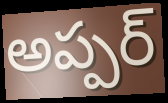
అప్పర్